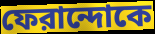
ফেরান্দোকে